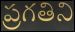
ప్రగతిని